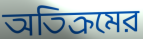
অতিক্রমের